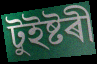
টুইষ্টৰী